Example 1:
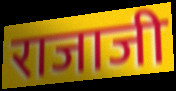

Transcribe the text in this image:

राजाजी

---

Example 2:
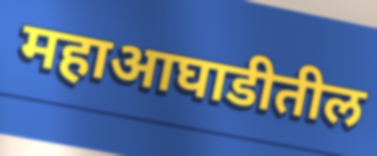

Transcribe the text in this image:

महाआघाडीतील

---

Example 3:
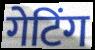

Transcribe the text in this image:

गेटिंग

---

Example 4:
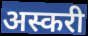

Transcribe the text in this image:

अस्करी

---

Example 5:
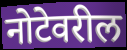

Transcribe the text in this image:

नोटेवरील